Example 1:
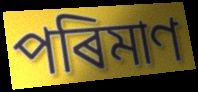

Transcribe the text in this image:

পৰিমাণ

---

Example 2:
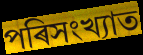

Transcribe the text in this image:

পৰিসংখ্যাত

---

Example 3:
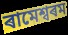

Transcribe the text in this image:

ৰামেশ্বৰম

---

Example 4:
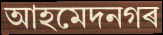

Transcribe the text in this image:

আহমেদনগৰ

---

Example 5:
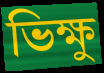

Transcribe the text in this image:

ভিক্ষু